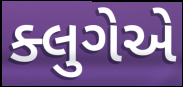
ક્લુગેએ